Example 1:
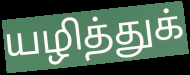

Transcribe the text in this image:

யழித்துக்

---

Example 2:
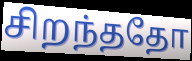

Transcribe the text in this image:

சிறந்ததோ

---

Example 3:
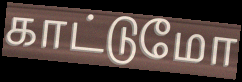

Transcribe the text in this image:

காட்டுமோ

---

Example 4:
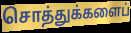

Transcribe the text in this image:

சொத்துக்களைப்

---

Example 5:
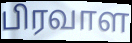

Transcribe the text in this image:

பிரவாள